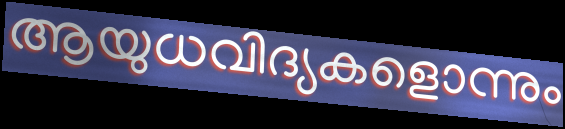
ആയുധവിദ്യകളൊന്നും